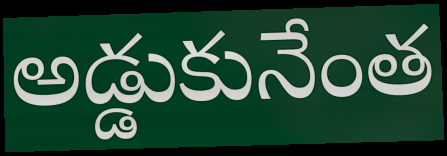
అడ్డుకునేంత